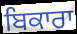
ਬਿਕਾਰਾ